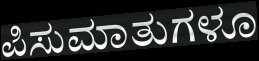
ಪಿಸುಮಾತುಗಳೂ